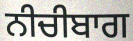
ਨੀਚੀਬਾਗ